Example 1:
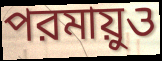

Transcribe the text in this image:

পরমায়ুও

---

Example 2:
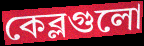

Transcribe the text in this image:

কেব্লগুলো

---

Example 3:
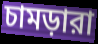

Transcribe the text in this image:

চামড়ারা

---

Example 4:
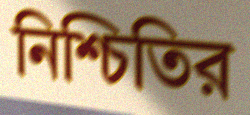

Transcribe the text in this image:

নিশ্চিতির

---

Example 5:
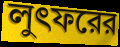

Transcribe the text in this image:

লুৎফরের